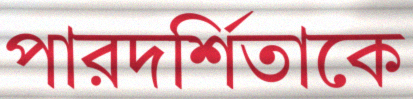
পারদর্শিতাকে